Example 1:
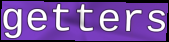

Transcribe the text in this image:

getters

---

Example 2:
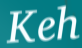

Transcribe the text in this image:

Keh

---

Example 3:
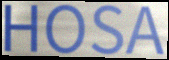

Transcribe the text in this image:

HOSA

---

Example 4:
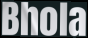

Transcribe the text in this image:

Bhola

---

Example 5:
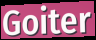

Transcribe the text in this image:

Goiter